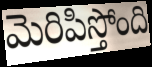
మెరిపిస్తోంది